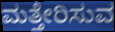
ಮತ್ತೇರಿಸುವ